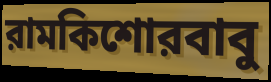
রামকিশোরবাবু